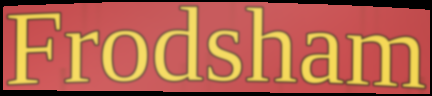
Frodsham